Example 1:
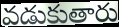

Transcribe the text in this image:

వడుకుతారు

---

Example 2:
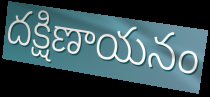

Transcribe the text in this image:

దక్షిణాయనం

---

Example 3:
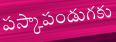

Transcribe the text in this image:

పస్కాపండుగకు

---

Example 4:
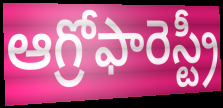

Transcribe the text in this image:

ఆగ్రోఫారెస్ట్రీ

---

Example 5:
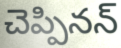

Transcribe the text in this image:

చెప్పినన్